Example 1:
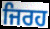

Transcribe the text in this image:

ਜਿਰਹ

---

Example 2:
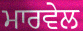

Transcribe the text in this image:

ਮਾਰਵੇਲ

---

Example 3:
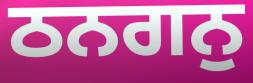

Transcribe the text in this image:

ਠਨਗਨੁ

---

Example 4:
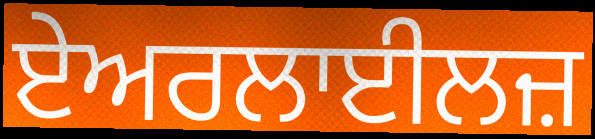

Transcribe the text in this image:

ਏਅਰਲਾਈਲਜ਼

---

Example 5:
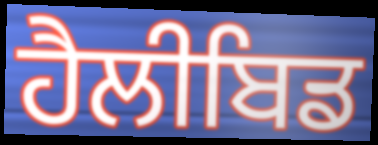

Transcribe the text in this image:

ਹੈਲੀਬਿਡ